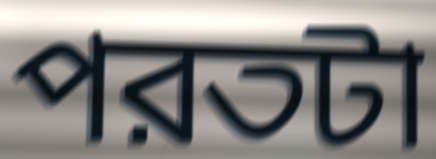
পরতটা